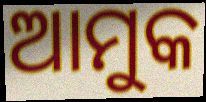
ଆମୁକ